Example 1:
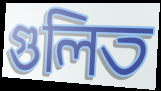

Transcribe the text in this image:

গুলিত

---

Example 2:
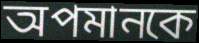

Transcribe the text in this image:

অপমানকে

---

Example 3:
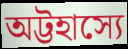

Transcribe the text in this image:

অট্টহাস্যে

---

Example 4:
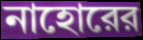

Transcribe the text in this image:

নাহোরের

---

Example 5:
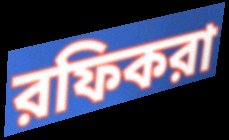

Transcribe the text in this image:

রফিকরা